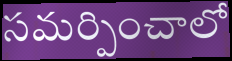
సమర్పించాలో